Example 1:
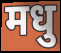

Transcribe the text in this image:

मधु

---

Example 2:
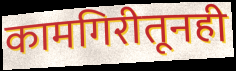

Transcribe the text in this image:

कामगिरीतूनही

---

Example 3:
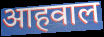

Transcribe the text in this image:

आहवाल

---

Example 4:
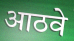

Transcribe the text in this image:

आठवे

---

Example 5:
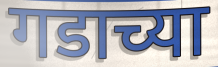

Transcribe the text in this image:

गडाच्या